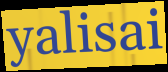
yalisai